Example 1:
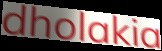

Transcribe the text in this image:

dholakia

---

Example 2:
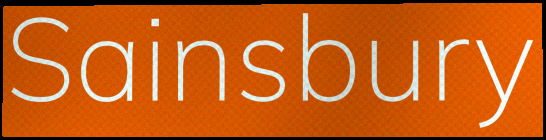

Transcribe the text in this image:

Sainsbury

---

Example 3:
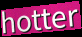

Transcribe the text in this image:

hotter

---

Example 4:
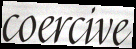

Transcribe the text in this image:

coercive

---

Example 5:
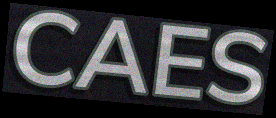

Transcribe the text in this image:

CAES